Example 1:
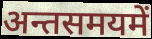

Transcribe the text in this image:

अन्तसमयमें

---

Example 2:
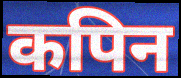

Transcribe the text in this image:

कपिन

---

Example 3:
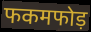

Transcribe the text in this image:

फकमफोड़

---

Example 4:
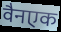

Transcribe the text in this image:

वैनएक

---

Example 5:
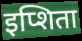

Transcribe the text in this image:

इप्शिता